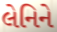
લેનિને